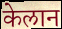
केलान